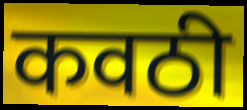
कवठी